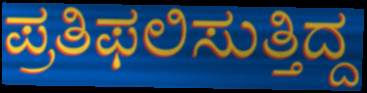
ಪ್ರತಿಫಲಿಸುತ್ತಿದ್ದ